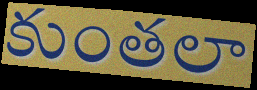
కుంతలా